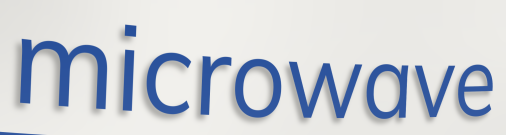
microwave